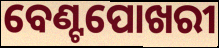
ବେଣ୍ଟପୋଖରୀ